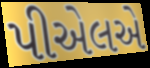
પીએલએ